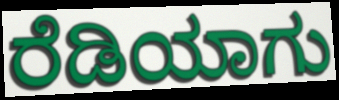
ರೆಡಿಯಾಗು